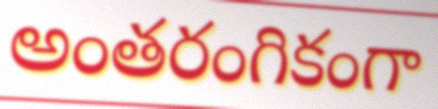
అంతరంగికంగా